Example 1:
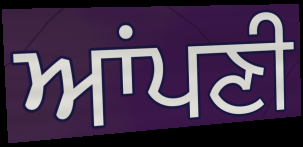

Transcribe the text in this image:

ਆਂਪਣੀ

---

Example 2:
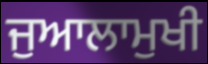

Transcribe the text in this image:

ਜੁਆਲਾਮੁਖੀ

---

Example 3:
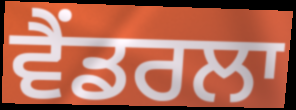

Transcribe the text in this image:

ਵੈਂਡਰਲਾ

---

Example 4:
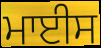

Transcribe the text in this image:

ਮਾਈਸ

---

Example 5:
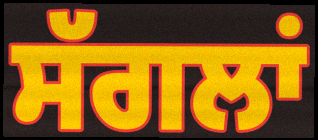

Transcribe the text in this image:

ਸੱਗਲਾਂ